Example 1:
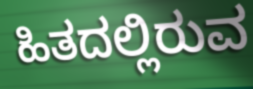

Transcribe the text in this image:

ಹಿತದಲ್ಲಿರುವ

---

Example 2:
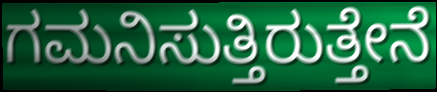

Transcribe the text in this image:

ಗಮನಿಸುತ್ತಿರುತ್ತೇನೆ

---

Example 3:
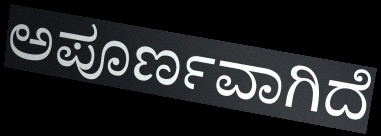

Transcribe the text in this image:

ಅಪೂರ್ಣವಾಗಿದೆ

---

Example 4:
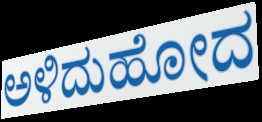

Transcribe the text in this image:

ಅಳಿದುಹೋದ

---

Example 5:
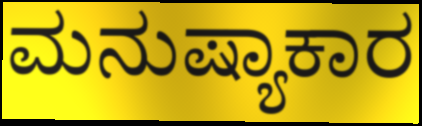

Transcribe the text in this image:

ಮನುಷ್ಯಾಕಾರ